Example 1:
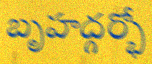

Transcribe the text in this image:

బృహద్గర్భో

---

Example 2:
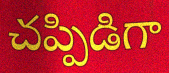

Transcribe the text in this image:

చప్పిడిగా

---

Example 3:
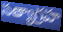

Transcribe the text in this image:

సత్యాగ్రహ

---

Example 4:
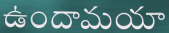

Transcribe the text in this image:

ఉందామయా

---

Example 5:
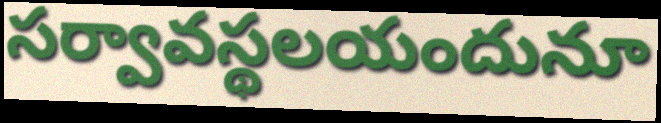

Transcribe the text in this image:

సర్వావస్థలయందునూ